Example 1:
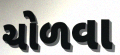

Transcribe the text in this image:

ચોળવા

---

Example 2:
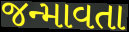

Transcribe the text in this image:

જન્માવતા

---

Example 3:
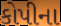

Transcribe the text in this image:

કોપીના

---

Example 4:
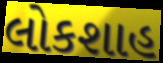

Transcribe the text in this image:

લોકશાહ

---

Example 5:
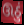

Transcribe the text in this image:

ઊઠું